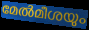
മേൽമീശയും